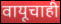
वायूचाही